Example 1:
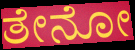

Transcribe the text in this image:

ತೇನೋ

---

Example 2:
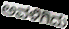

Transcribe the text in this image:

ಅವಳಿಗಿದು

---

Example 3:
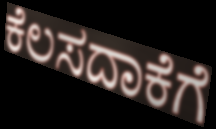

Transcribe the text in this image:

ಕೆಲಸದಾಕೆಗೆ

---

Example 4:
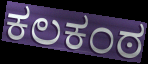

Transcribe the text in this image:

ಕಲಕಂಠ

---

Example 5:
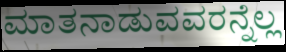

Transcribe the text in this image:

ಮಾತನಾಡುವವರನ್ನೆಲ್ಲ